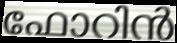
ഫോറിൻ